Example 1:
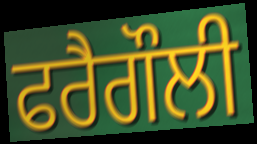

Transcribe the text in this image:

ਫਰੈਗੌਲੀ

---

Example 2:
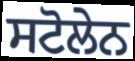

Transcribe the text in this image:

ਸਟੋਲੇਨ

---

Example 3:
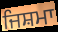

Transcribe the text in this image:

ਜਿਸ਼ਮਾ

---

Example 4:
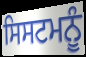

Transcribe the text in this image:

ਸਿਸਟਮਨੂੰ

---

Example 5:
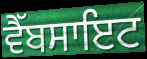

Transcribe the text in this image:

ਵੈੱਬਸਾਇਟ